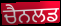
ਚੈਨਲਡ